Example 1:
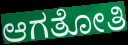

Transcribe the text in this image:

ಆಗತೋತಿ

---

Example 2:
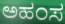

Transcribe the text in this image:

ಅಹಂಸ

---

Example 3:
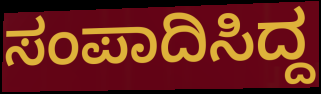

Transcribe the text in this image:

ಸಂಪಾದಿಸಿದ್ದ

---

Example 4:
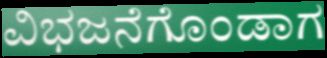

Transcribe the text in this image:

ವಿಭಜನೆಗೊಂಡಾಗ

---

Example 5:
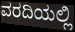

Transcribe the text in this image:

ವರದಿಯಲ್ಲಿ